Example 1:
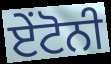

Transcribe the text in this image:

ਏਂਟੋਨੀ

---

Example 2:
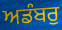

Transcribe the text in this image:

ਅਡੰਬਰੁ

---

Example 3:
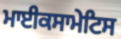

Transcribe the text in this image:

ਮਾਈਕਸਾਮੇਟਿਸ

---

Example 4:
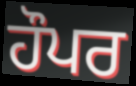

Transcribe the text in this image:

ਹੌਪਰ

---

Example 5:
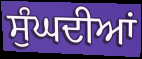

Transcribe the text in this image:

ਸੁੰਘਦੀਆਂ